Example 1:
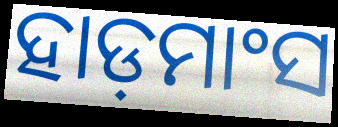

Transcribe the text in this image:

ହାଡ଼ମାଂସ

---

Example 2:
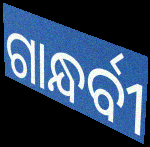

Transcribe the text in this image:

ଗାନ୍ଧର୍ବୀ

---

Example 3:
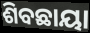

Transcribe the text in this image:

ଶିବଛାୟା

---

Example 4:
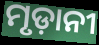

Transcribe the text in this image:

ମୃଡ଼ାନୀ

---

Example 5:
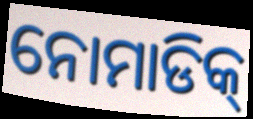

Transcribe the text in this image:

ନୋମାଡିକ୍